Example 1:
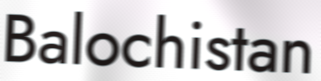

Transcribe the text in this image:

Balochistan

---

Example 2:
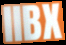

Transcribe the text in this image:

IIBX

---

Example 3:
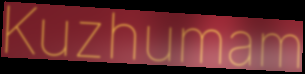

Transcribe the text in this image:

Kuzhumam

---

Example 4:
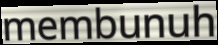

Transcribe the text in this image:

membunuh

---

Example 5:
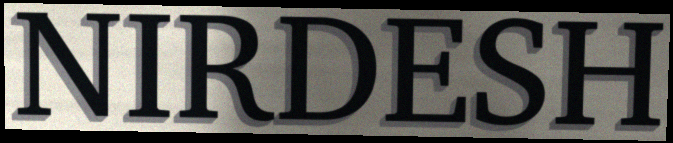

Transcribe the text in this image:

NIRDESH